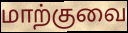
மாற்குவை